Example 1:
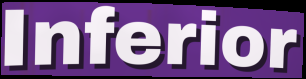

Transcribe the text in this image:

Inferior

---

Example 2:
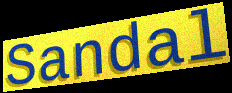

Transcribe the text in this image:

Sandal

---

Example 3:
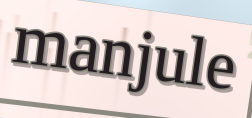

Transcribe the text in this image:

manjule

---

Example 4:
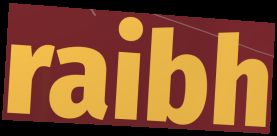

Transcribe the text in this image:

raibh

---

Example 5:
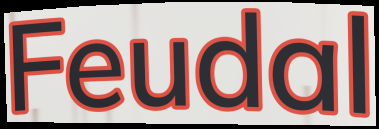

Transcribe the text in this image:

Feudal